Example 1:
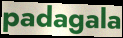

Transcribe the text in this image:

padagala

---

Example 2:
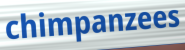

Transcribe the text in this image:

chimpanzees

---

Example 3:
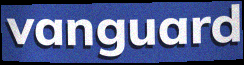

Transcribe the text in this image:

vanguard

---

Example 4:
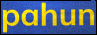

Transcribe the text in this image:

pahun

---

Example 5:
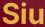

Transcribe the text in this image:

Siu